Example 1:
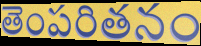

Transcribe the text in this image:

తెంపరితనం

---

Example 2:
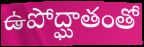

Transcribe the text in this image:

ఉపోద్ఘాతంతో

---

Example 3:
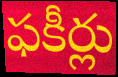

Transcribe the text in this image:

ఫకీర్లు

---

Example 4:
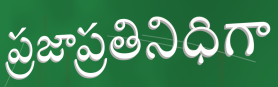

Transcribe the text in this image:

ప్రజాప్రతినిధిగా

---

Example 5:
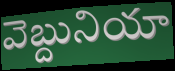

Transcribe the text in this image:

వెబ్దునియా